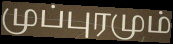
முப்புரமும்